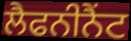
ਲੈਫਨੀਨੈਂਟ